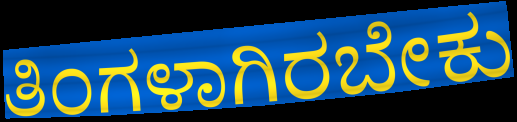
ತಿಂಗಳಾಗಿರಬೇಕು